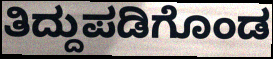
ತಿದ್ದುಪಡಿಗೊಂಡ